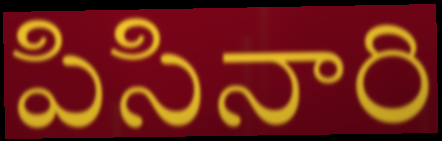
పిసినారి